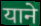
याने